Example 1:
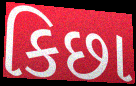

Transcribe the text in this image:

કિછા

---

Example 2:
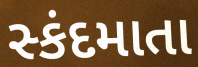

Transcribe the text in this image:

સ્કંદમાતા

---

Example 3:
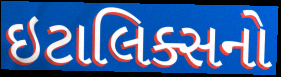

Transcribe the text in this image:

ઇટાલિક્સનો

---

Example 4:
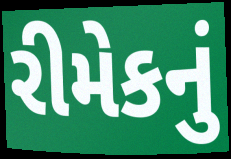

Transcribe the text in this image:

રીમેકનું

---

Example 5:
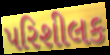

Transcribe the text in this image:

પરિશીલક